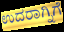
ಉದರಾಗ್ನಿಗೆ